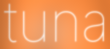
tuna